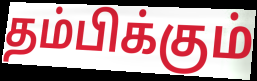
தம்பிக்கும்